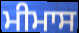
ਮੀਮਾਸ